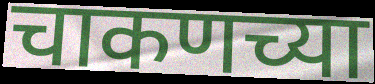
चाकणच्या